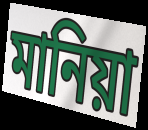
মানিয়া